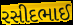
રસીદભાઈ